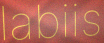
labiis